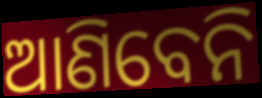
ଆଣିବେନି